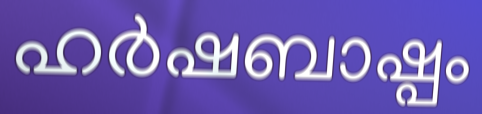
ഹർഷബാഷ്പം